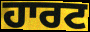
ਹਾਰਟ